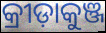
କ୍ରୀଡ଼ାକୁଞ୍ଜ